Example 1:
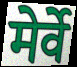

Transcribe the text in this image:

मेर्वे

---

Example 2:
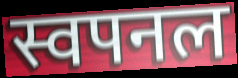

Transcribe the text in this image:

स्वपनल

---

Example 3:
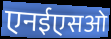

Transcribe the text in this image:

एनईएसओ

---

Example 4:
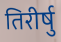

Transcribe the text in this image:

तिरीर्षु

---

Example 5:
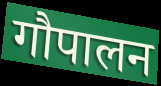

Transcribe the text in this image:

गौपालन